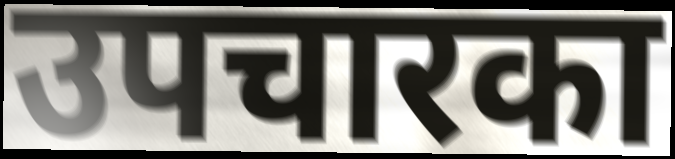
उपचारका